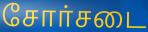
சோர்சடை